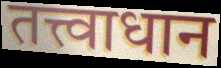
तत्त्वाधान